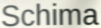
Schima